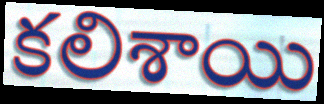
కలిశాయి